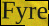
Fyre